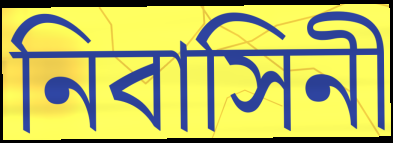
নিবাসিনী